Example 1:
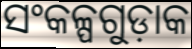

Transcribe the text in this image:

ସଂକଳ୍ପଗୁଡ଼ାକ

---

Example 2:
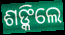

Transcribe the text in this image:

ଶଙ୍କିଲେ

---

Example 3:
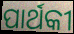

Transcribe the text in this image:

ପାର୍ଥକୀ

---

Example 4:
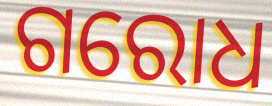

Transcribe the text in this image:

ଗରୋଧ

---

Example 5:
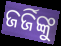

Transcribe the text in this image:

ଜର୍ଜିଙ୍କୁ